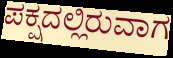
ಪಕ್ಷದಲ್ಲಿರುವಾಗ